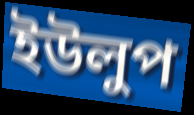
ইউলুপ